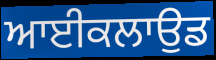
ਆਈਕਲਾਉਡ